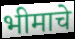
भीमाचे